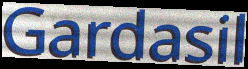
Gardasil